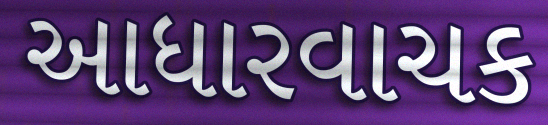
આધારવાચક